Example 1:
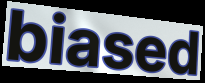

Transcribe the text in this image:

biased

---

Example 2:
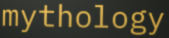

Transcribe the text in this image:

mythology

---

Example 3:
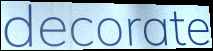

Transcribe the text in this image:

decorate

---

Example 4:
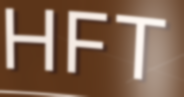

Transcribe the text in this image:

HFT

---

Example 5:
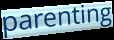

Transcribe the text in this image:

parenting